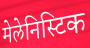
मेलेनिस्टिक